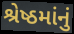
શ્રેષ્ઠમાંનું